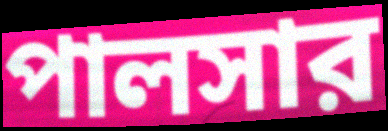
পালসার